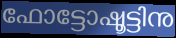
ഫോട്ടോഷൂട്ടിനു